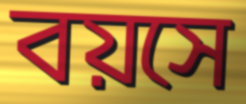
বয়সে